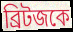
ব্রিটজকে